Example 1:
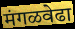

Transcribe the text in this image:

मंगळवेढा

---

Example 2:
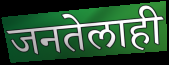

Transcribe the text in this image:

जनतेलाही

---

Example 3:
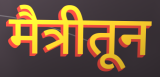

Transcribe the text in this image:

मैत्रीतून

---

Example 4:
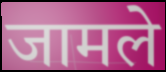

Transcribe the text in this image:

जामले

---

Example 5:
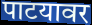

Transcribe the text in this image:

पाटयावर